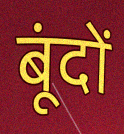
बूंदों